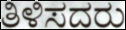
ತಿಳಿಸದರು